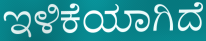
ಇಳಿಕೆಯಾಗಿದೆ